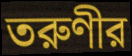
তরুণীর